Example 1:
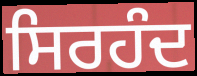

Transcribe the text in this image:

ਸਿਰਹੰਦ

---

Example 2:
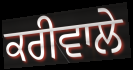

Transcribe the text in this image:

ਕਰੀਵਾਲੇ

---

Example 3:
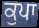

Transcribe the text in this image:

ਕੁਪਾ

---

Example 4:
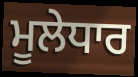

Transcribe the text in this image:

ਮੂਲੇਧਾਰ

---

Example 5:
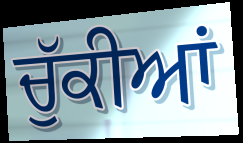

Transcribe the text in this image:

ਚੁੱਕੀਆਂ